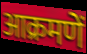
आक्रमणें